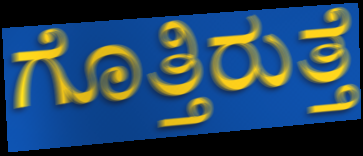
ಗೊತ್ತಿರುತ್ತೆ